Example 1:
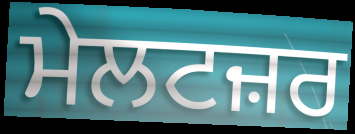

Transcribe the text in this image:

ਮੇਲਟਜ਼ਰ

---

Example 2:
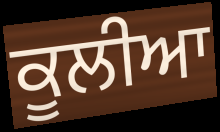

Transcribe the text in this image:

ਕੂਲੀਆ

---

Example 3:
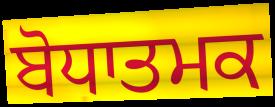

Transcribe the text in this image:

ਬੋਧਾਤਮਕ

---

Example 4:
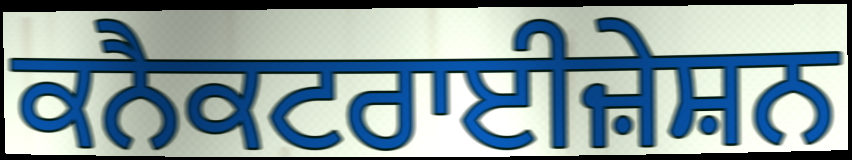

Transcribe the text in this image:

ਕਨੈਕਟਰਾਈਜ਼ੇਸ਼ਨ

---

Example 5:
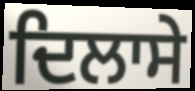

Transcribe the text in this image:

ਦਿਲਾਸੇ